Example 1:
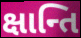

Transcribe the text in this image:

ક્ષાન્તિ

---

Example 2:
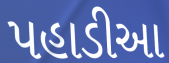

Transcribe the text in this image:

પહાડીઆ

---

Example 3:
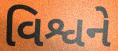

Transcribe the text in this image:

વિશ્વને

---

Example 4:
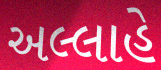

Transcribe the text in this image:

અલ્લાહે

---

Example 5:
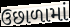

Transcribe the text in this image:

ઉછાળામાં